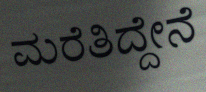
ಮರೆತಿದ್ದೇನೆ